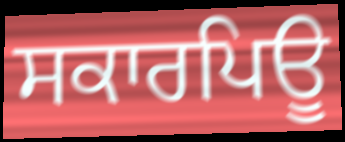
ਸਕਾਰਪਿਊ